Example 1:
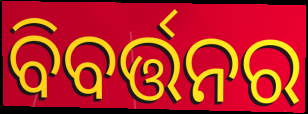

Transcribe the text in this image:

ବିବର୍ତ୍ତନର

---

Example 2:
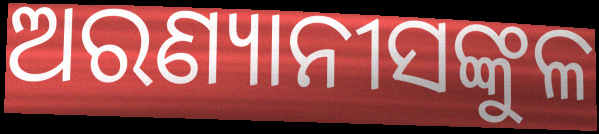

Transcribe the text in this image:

ଅରଣ୍ୟାନୀସଙ୍କୁଳ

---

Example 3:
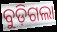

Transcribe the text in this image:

ବୁଡ଼ିଗଲା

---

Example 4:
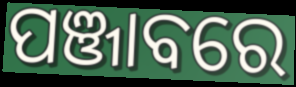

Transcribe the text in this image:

ପଞ୍ଜାବରେ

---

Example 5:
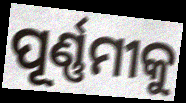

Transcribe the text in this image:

ପୂର୍ଣ୍ଣମୀକୁ